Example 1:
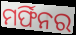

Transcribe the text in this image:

ମର୍ଫିନର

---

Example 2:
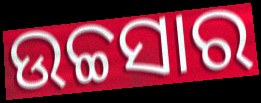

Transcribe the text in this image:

ଉଚ୍ଚସାର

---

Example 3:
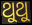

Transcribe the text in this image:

ଥୁଥୁ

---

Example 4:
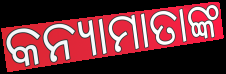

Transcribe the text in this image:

କନ୍ୟାମାତାଙ୍କ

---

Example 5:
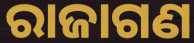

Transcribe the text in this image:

ରାଜାଗଣ